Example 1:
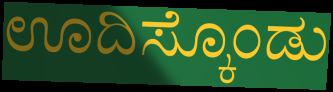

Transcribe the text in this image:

ಊದಿಸ್ಕೊಂಡು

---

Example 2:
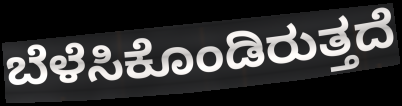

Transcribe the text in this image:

ಬೆಳೆಸಿಕೊಂಡಿರುತ್ತದೆ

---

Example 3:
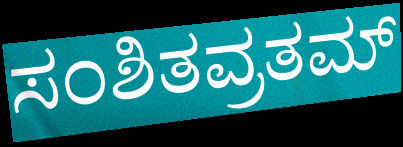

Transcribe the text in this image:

ಸಂಶಿತವ್ರತಮ್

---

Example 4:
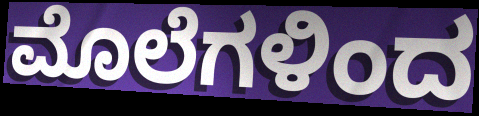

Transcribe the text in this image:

ಮೊಲೆಗಳಿಂದ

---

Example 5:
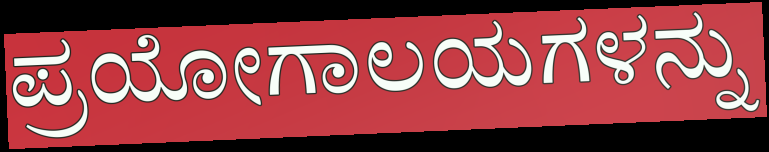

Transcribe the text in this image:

ಪ್ರಯೋಗಾಲಯಗಳನ್ನು